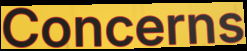
Concerns